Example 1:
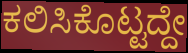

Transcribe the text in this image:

ಕಲಿಸಿಕೊಟ್ಟದ್ದೇ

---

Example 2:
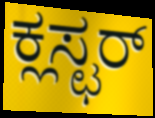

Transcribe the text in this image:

ಕ್ಲಸ್ಟರ್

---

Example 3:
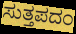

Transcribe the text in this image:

ಸುತ್ತಪದಂ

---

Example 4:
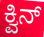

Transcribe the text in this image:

ಕ್ವಿನ್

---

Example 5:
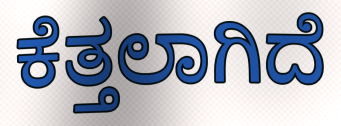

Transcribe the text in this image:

ಕೆತ್ತಲಾಗಿದೆ